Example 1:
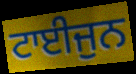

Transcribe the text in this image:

ਟਾਈਜੁਨ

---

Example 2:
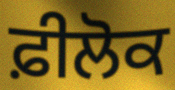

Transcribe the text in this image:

ਫ਼ੀਲੋਕ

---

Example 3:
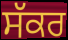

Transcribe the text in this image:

ਸੱਕਰ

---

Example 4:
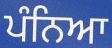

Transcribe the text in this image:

ਪੰਨਿਆ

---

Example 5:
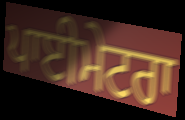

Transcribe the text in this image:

ਪਾਈਮੇਟਰਾ